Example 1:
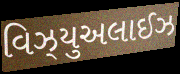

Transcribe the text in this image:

વિઝ્યુઅલાઈઝ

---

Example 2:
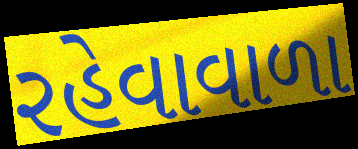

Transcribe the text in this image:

રહેવાવાળા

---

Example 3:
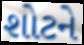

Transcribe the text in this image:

શોટને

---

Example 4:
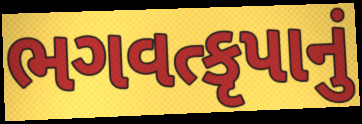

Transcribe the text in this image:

ભગવત્કૃપાનું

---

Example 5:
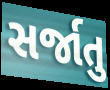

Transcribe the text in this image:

સર્જાતુ